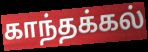
காந்தக்கல்